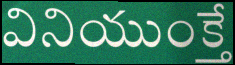
వినియుంక్తే